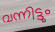
വന്നിട്ടും